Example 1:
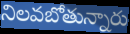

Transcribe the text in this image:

నిలవబోతున్నారు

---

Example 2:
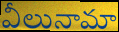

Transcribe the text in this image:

వీలునామా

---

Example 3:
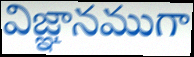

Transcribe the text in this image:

విజ్ఞానముగా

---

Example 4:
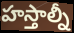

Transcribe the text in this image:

హస్తాల్నీ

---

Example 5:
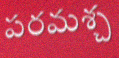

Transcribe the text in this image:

పరమశ్చ